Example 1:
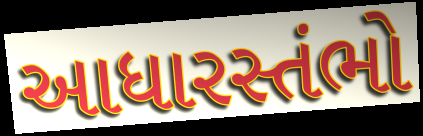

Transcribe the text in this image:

આધારસ્તંભો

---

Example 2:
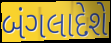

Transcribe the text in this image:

બંગલાદેશે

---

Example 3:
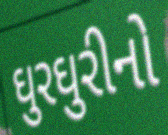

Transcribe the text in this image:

ઘુરઘુરીનો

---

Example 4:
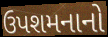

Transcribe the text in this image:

ઉપશમનાનો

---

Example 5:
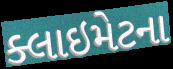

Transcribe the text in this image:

ક્લાઇમેટના